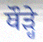
ਥੌੜ੍ਹੇ